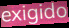
exigido